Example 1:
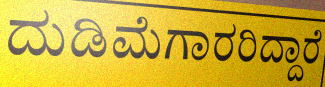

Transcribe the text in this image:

ದುಡಿಮೆಗಾರರಿದ್ದಾರೆ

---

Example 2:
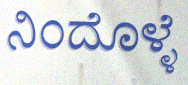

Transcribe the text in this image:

ನಿಂದೊಳ್ಳೆ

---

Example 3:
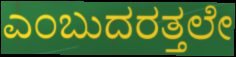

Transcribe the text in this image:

ಎಂಬುದರತ್ತಲೇ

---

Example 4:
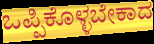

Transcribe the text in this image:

ಒಪ್ಪಿಕೊಳ್ಳಬೇಕಾದ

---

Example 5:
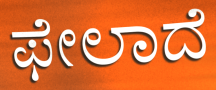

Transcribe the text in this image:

ಫೇಲಾದೆ